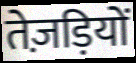
तेज़ड़ियों